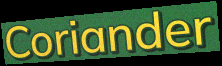
Coriander